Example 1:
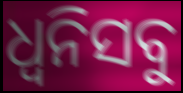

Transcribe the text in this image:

ଧ୍ୱନିସବୁ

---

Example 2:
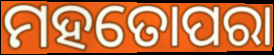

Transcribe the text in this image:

ମହତୋପରା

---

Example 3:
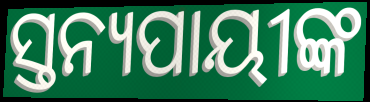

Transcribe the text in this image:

ସ୍ତନ୍ୟପାୟୀଙ୍କ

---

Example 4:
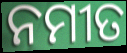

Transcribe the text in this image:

ନମୀତ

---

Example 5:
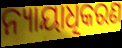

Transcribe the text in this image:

ନ୍ୟାୟାଧିକରଣ